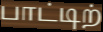
பாட்டிற்